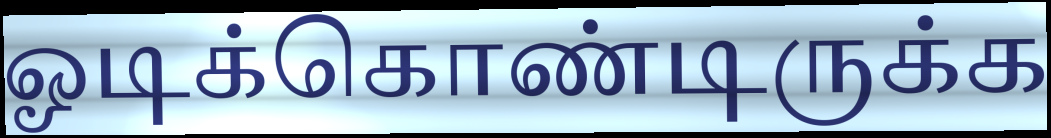
ஓடிக்கொண்டிருக்க